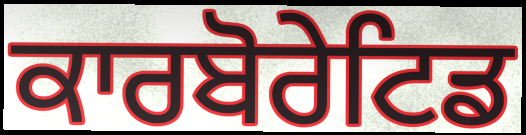
ਕਾਰਬੋਰੇਟਿਡ